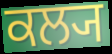
ਕਲ੍ਯ